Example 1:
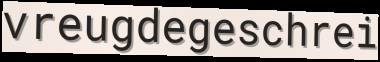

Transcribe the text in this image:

vreugdegeschrei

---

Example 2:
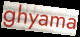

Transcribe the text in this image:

ghyama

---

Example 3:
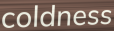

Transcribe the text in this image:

coldness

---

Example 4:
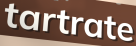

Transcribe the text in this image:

tartrate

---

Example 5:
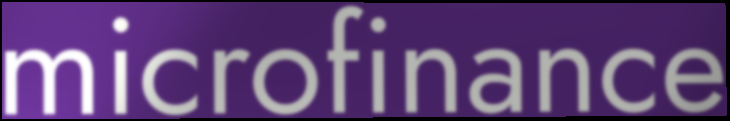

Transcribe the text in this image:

microfinance